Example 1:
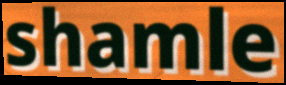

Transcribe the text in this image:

shamle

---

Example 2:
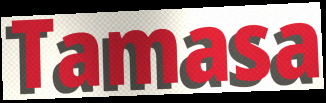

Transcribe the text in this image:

Tamasa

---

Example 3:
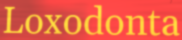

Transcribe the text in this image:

Loxodonta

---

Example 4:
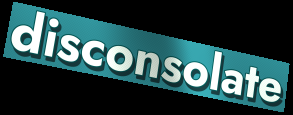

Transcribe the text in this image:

disconsolate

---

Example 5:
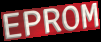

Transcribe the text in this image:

EPROM